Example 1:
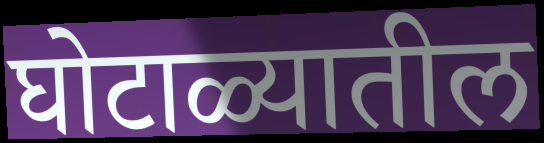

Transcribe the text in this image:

घोटाळ्यातील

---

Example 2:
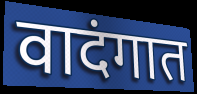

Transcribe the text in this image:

वादंगात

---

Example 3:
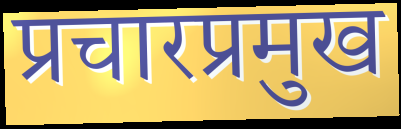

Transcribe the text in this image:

प्रचारप्रमुख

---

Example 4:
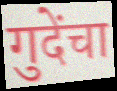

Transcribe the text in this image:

गुदेंचा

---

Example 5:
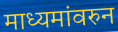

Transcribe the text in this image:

माध्यमांवरुन